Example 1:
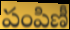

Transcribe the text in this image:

పంపిణీ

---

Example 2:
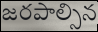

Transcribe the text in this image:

జరపాల్సిన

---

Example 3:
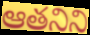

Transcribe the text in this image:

ఆతనిని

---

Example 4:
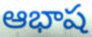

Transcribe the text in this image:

ఆభాష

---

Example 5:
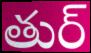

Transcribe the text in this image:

తుర్